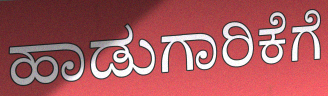
ಹಾಡುಗಾರಿಕೆಗೆ